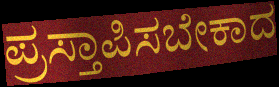
ಪ್ರಸ್ತಾಪಿಸಬೇಕಾದ